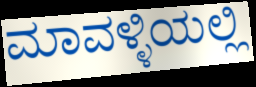
ಮಾವಳ್ಳಿಯಲ್ಲಿ